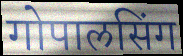
गोपालसिंग